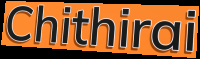
Chithirai